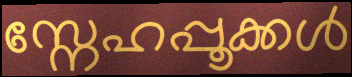
സ്നേഹപ്പൂക്കൾ